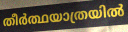
തീർത്ഥയാത്രയിൽ